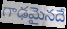
గాఢమైనదే